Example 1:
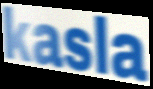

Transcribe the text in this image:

kasla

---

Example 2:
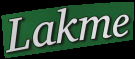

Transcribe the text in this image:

Lakme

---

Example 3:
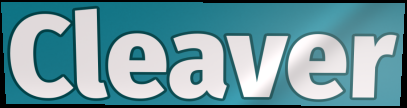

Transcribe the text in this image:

Cleaver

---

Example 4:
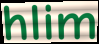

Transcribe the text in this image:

hlim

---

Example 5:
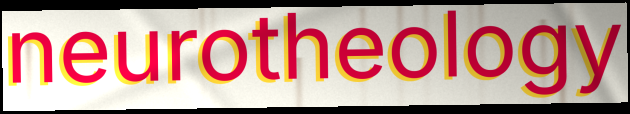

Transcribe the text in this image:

neurotheology